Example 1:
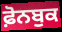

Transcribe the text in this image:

ਫ਼ੋਨਬੁਕ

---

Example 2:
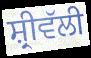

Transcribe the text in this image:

ਸ਼੍ਰੀਵੱਲੀ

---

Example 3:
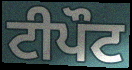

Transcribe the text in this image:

ਟੀਪੌਟ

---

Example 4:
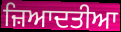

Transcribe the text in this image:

ਜ਼ਿਆਦਤੀਆ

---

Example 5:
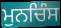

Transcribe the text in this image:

ਮੁਨਚਿੰਸ